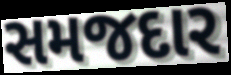
સમજદાર